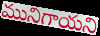
మునిగాయని